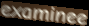
examinee